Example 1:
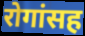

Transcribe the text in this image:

रोगांसह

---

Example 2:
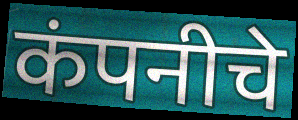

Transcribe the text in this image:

कंपनीचे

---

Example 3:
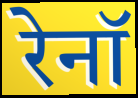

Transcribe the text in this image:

रेनॉ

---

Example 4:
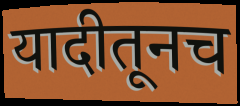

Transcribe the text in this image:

यादीतूनच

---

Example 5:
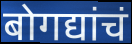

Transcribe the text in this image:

बोगद्यांचं